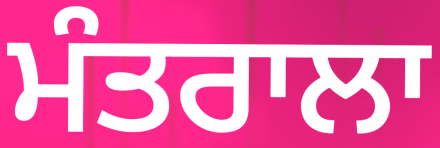
ਮੰਤਰਾਲਾ